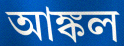
আঙ্কল